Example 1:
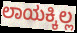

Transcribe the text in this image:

ಲಾಯಕ್ಕಿಲ್ಲ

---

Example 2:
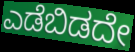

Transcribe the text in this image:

ಎಡೆಬಿಡದೇ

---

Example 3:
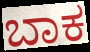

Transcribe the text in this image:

ಬಾಕ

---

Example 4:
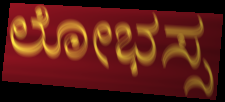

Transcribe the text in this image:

ಲೋಭಸ್ಸ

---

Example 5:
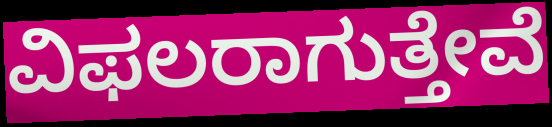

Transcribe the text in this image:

ವಿಫಲರಾಗುತ್ತೇವೆ